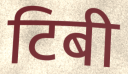
टिबी